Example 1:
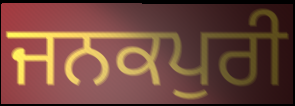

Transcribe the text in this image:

ਜਨਕਪੁਰੀ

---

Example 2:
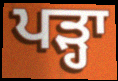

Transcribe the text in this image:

ਪੜ੍ਹਾ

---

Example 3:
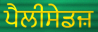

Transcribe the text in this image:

ਪੈਲੀਸੇਡਜ਼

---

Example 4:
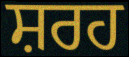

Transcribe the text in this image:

ਸ਼ਰਹ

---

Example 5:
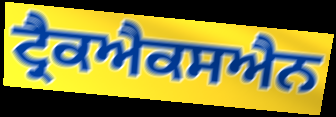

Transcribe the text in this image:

ਟ੍ਰੈਕਐਕਸਐਨ